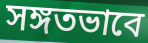
সঙ্গতভাবে